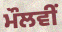
ਮੌਲਵੀਂ